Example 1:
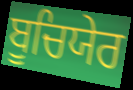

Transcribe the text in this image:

ਬੂਚਿਯੇਰ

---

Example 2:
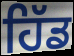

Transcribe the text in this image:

ਹਿੱਡ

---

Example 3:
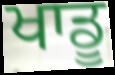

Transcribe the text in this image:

ਖਾਡੂ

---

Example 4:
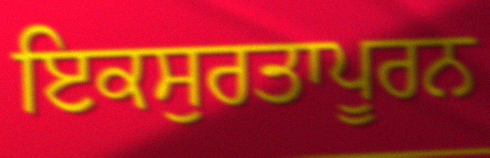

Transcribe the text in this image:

ਇਕਸੁਰਤਾਪੂਰਨ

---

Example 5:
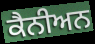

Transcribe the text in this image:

ਕੈਨੀਅਨ